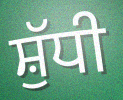
ਸ਼ੁੱਧੀ